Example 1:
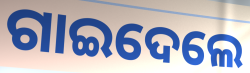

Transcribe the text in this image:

ଗାଇଦେଲେ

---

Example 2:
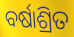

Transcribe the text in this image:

ବର୍ଷାଶ୍ରିତ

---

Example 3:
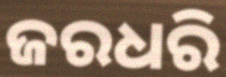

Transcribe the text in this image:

ଜରଧରି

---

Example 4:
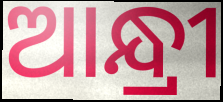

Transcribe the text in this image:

ଆନ୍ଧ୍ରୀ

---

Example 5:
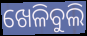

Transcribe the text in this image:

ଖେଳିବୁଲି